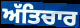
ਅੱਤਿਚਾਰ